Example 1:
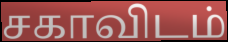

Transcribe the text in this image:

சகாவிடம்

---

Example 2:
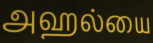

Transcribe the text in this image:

அஹல்யை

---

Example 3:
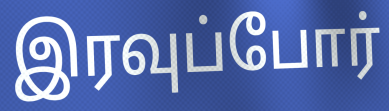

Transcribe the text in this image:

இரவுப்போர்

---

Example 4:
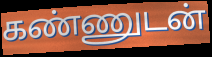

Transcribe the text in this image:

கண்ணுடன்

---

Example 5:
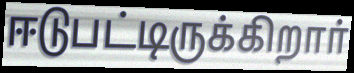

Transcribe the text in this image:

ஈடுபட்டிருக்கிறார்